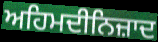
ਅਹਿਮਦੀਨਿਜ਼ਾਦ